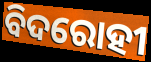
ବିଦରୋହୀ